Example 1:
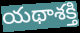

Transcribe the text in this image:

యథాశక్తి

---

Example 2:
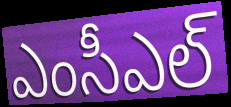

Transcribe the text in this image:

ఎంసీఎల్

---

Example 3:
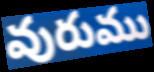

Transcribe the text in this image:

వురుము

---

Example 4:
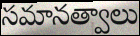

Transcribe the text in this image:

సమానత్వాలు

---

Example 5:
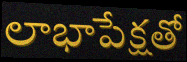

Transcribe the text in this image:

లాభాపేక్షతో